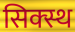
सिक्स्थ